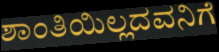
ಶಾಂತಿಯಿಲ್ಲದವನಿಗೆ